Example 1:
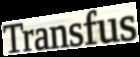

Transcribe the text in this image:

Transfus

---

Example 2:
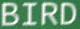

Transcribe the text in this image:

BIRD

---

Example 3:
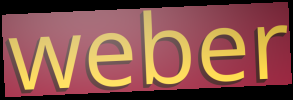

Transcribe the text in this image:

weber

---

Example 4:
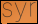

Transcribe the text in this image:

syr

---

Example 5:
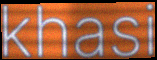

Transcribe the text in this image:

khasi